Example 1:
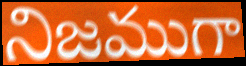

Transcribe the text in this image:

నిజముగా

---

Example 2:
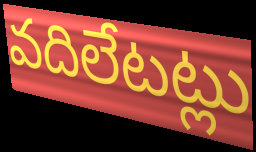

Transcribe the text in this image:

వదిలేటట్లు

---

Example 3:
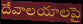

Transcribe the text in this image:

దేవాలయాలపై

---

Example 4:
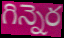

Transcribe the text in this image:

గిన్నెర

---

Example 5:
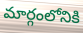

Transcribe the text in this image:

మార్గంలోనికి